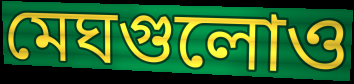
মেঘগুলোও